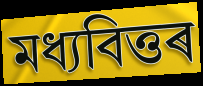
মধ্যবিত্তৰ